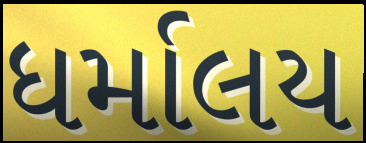
ધર્માલય